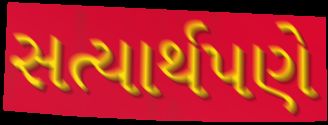
સત્યાર્થપણે